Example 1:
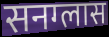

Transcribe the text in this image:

सनग्लास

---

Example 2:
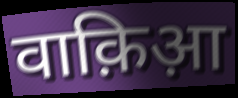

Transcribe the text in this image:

वाक़िआ़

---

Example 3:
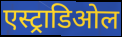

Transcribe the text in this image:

एस्ट्राडिओल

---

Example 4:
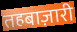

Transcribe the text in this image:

तहबाज़ारी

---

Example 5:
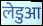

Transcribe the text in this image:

लेडुआ